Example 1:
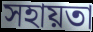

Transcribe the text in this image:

সহায়তা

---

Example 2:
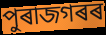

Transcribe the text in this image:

পুৰাজগৰৰ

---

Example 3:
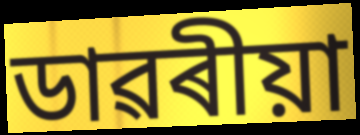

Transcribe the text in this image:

ডাৱৰীয়া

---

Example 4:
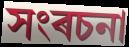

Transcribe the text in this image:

সংৰচনা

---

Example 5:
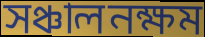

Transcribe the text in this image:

সঞ্চালনক্ষম